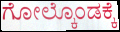
ಗೋಲ್ಕೊಂಡಕ್ಕೆ